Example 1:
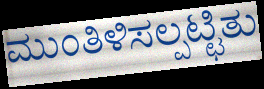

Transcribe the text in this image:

ಮುಂತಿಳಿಸಲ್ಪಟ್ಟಿತು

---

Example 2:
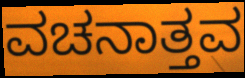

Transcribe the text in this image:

ವಚನಾತ್ತವ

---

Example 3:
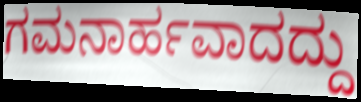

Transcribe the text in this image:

ಗಮನಾರ್ಹವಾದದ್ದು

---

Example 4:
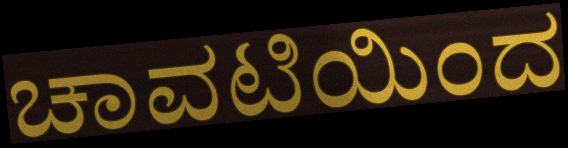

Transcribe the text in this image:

ಚಾವಟಿಯಿಂದ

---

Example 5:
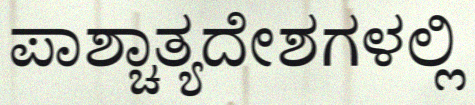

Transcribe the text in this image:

ಪಾಶ್ಚಾತ್ಯದೇಶಗಳಲ್ಲಿ